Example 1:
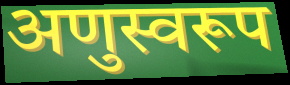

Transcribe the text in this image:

अणुस्वरूप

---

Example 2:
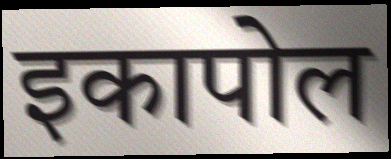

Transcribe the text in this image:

इकापोल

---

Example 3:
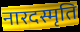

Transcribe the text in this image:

नारदस्मृति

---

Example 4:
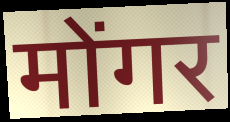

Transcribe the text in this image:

मोंगर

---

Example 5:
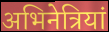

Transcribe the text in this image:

अभिनेत्रियां